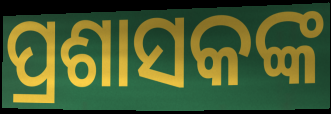
ପ୍ରଶାସକଙ୍କ